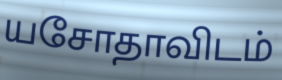
யசோதாவிடம்